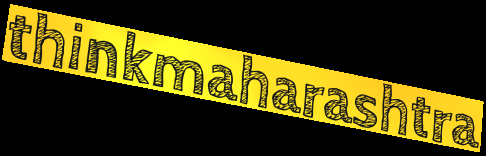
thinkmaharashtra